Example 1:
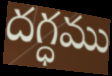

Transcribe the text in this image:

దగ్ధము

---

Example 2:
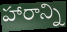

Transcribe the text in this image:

హారాన్ని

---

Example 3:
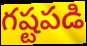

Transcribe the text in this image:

గష్టపడి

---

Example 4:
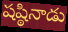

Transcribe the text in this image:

షష్ఠినాడు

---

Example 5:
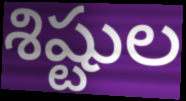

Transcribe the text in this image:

శిష్టుల